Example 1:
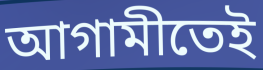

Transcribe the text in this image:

আগামীতেই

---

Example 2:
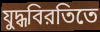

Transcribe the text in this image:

যুদ্ধবিরতিতে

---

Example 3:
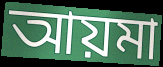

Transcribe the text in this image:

আয়মা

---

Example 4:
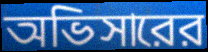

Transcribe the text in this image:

অভিসারের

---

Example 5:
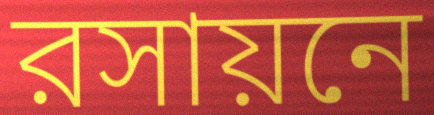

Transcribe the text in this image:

রসায়নে